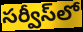
సర్వీస్‌లో